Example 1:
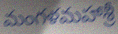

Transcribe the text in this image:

మంగళమహాశ్రీ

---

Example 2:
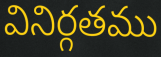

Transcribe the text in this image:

వినిర్గతము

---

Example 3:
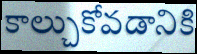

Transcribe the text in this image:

కాల్చుకోవడానికి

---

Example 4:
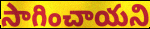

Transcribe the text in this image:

సాగించాయని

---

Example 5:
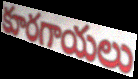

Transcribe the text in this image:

కూరగాయలు